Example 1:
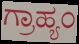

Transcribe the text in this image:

ಗ್ರಾಹ್ಯಂ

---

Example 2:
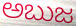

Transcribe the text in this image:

ಅಬುಜ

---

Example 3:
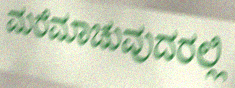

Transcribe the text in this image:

ಮರೆಮಾಚುವುದರಲ್ಲಿ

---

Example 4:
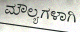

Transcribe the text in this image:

ಮೌಲ್ಯಗಳಾಗಿ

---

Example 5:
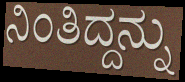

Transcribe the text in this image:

ನಿಂತಿದ್ದನ್ನು